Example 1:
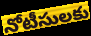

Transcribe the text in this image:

నోటీసులకు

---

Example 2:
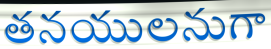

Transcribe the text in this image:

తనయులనుగా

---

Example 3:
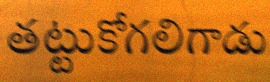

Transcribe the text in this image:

తట్టుకోగలిగాడు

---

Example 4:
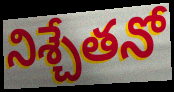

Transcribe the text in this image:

నిశ్చేతనో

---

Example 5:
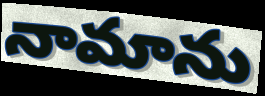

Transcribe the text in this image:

నామాను